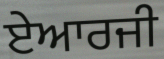
ਏਆਰਜੀ